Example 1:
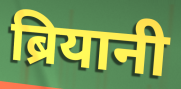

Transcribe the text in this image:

ब्रियानी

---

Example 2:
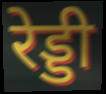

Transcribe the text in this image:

रेड्डी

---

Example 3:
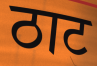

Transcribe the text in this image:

ठाट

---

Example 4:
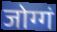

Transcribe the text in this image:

जोग्गं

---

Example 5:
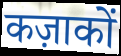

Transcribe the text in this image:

कज़ाकों